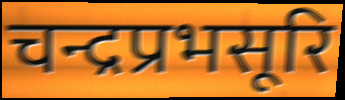
चन्द्रप्रभसूरि